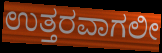
ಉತ್ತರವಾಗಲೀ